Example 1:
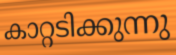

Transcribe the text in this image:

കാറ്റടിക്കുന്നു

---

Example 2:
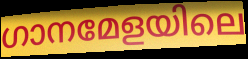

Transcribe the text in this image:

ഗാനമേളയിലെ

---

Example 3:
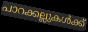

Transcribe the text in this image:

പാറക്കല്ലുകൾക്ക്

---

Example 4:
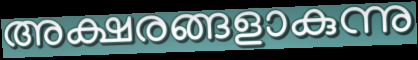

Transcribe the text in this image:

അക്ഷരങ്ങളാകുന്നു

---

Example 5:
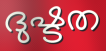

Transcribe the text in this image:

ദുഷ്ടത